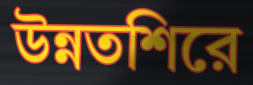
উন্নতশিরে